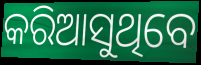
କରିଆସୁଥିବେ